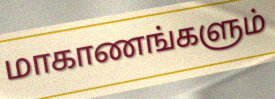
மாகாணங்களும்